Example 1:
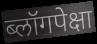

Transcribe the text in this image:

ब्लॉगपेक्षा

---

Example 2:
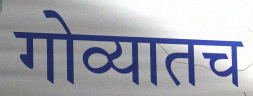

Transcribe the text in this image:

गोव्यातच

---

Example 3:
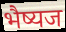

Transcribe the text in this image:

भैष्यज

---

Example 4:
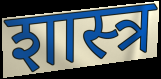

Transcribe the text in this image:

शास्त्र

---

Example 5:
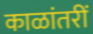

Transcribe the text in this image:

काळांतरीं